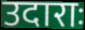
उदाराः